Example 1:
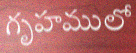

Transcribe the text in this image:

గృహములో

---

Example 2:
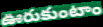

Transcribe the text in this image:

ఊరుకుంటాం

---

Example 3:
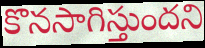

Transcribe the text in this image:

కొనసాగిస్తుందని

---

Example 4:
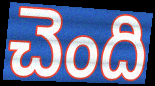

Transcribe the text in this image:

చెంది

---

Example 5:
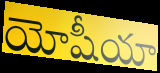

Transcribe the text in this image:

యోషీయా